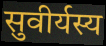
सुवीर्यस्य